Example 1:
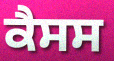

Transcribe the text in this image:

ਕੈਸਸ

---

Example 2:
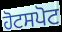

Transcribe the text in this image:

ਹੋਟਸਪੋਟ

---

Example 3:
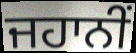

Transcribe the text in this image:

ਜਹਾਨੀਂ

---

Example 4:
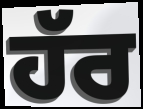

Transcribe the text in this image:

ਹੱਰ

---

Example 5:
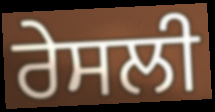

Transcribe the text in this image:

ਰੇਸਲੀ